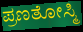
ಪ್ರಣತೋಸ್ಮಿ